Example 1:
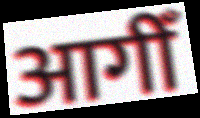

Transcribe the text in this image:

आगीँ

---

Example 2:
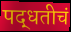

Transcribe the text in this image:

पद्धतीचं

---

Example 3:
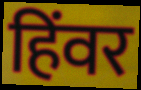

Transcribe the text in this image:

हिंवर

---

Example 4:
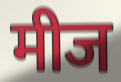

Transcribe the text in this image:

मीज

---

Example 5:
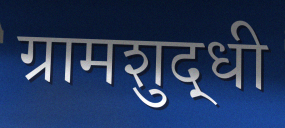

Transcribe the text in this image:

ग्रामशुद्धी